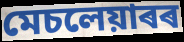
মেচলেয়াৰৰ